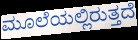
ಮೂಲೆಯಲ್ಲಿರುತ್ತದೆ